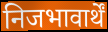
निजभावार्थें